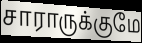
சாராருக்குமே